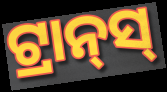
ଟ୍ରାନ୍‍ସ୍